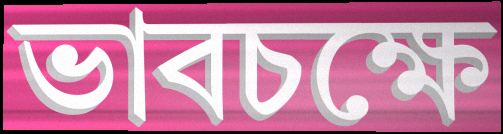
ভাবচক্ষে